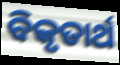
ବିକୃତାର୍ଥ